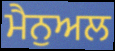
ਮੈਨੁਅਲ